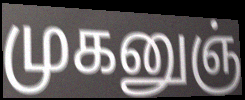
முகனுஞ்